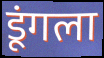
डूंगला